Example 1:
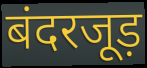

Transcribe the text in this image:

बंदरजूड़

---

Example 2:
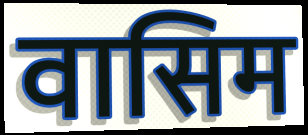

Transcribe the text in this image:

वासिम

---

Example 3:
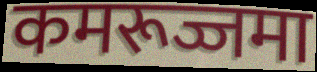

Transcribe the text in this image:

कमरूज्जमा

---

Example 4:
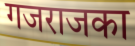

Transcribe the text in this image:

गजराजका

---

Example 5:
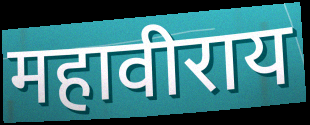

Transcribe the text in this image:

महावीराय